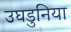
उघडुनिया